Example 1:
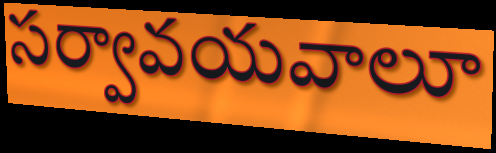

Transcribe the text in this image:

సర్వావయవాలూ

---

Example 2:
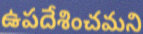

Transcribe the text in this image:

ఉపదేశించమని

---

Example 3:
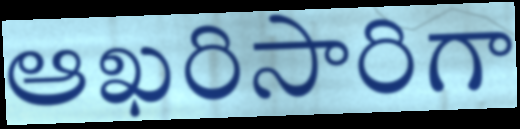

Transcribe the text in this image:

ఆఖరిసారిగా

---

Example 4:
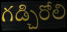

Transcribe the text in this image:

గడ్చిరోలి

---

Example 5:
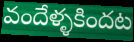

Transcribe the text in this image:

వందేళ్ళకిందట